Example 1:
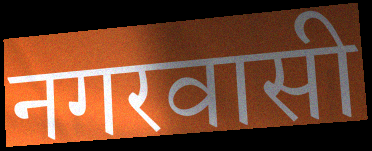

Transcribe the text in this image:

नगरवासी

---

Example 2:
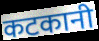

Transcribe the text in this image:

कटकानी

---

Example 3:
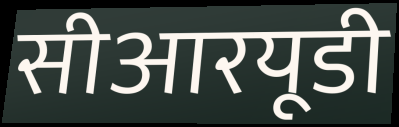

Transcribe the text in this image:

सीआरयूडी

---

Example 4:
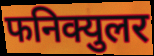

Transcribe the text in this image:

फनिक्युलर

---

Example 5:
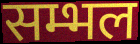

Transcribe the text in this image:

सम्भल